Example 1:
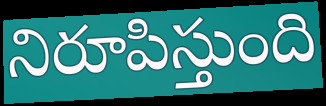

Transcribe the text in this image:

నిరూపిస్తుంది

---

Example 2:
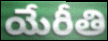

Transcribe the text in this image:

యేరీతి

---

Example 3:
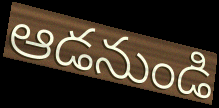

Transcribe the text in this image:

ఆడనుండి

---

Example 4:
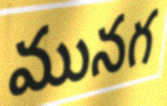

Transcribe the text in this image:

మునగ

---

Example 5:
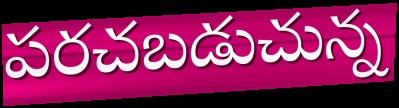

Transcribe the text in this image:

పరచబడుచున్న